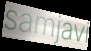
samjavi